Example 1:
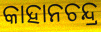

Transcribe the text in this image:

କାହାନଚନ୍ଦ୍ର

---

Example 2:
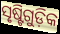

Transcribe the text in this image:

ସୃଷ୍ଟିଗୁଡ଼ିକ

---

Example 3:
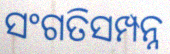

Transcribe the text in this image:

ସଂଗତିସମ୍ପନ୍ନ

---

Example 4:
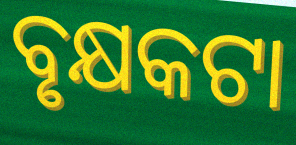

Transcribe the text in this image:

ବୃକ୍ଷକଟା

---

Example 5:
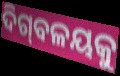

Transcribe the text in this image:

ଦିଗ୍‌ବଳୟକୁ